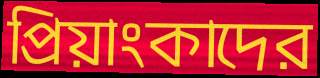
প্রিয়াংকাদের